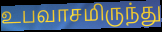
உபவாசமிருந்து